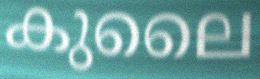
കുലൈ